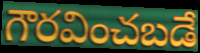
గౌరవించబడే